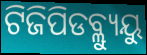
ଟିଜିପିଡବ୍ଲ୍ୟୁୟୁ